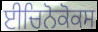
ਈਚਿਨੋਕੋਕਸ